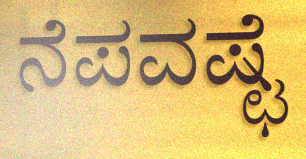
ನೆಪವಷ್ಟೆ